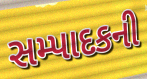
સમ્પાદકની